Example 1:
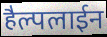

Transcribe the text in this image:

हैल्पलाईन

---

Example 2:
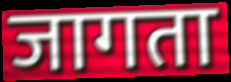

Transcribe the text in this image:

जागता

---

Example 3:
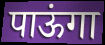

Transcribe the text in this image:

पाऊंगा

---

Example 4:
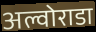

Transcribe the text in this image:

अल्वोराडा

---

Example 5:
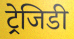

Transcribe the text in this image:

ट्रेजिडी